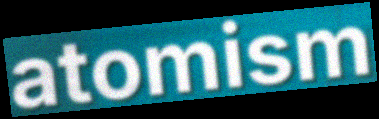
atomism